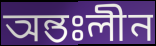
অন্তঃলীন